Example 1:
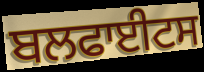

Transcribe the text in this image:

ਬਲਫਾਈਟਸ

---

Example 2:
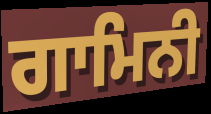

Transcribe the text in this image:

ਗਾਮਿਨੀ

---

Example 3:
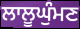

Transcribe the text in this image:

ਲਾਲੂਘੁੰਮਣ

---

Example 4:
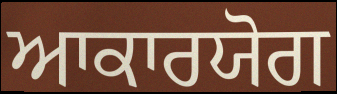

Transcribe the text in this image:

ਆਕਾਰਯੋਗ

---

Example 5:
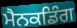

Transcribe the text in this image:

ਮੈਨਕਡਿੰਗ